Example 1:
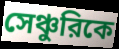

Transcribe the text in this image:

সেঞ্চুরিকে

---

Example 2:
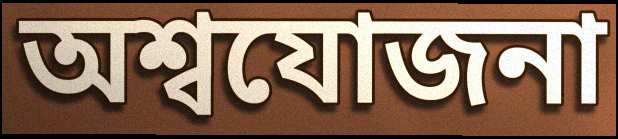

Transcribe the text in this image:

অশ্বযোজনা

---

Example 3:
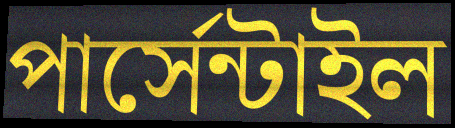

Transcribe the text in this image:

পার্সেন্টাইল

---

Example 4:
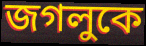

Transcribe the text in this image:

জগলুকে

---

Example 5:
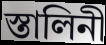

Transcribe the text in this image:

স্তালিনী